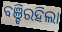
ବଞ୍ଚିରହିଲା